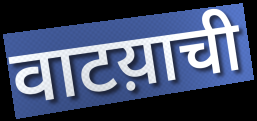
वाटय़ाची